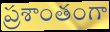
ప్రశాంతంగా